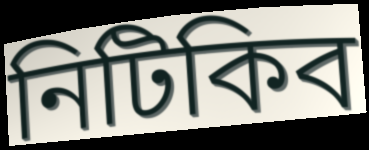
নিটিকিব